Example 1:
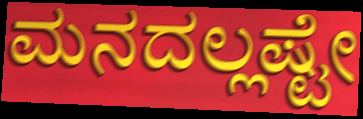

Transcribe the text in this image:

ಮನದಲ್ಲಷ್ಟೇ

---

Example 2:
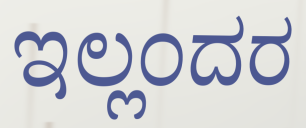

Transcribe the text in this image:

ಇಲ್ಲಂದರ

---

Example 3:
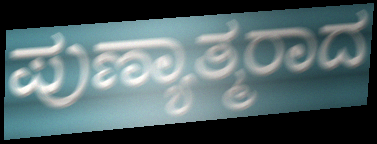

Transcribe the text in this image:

ಪುಣ್ಯಾತ್ಮರಾದ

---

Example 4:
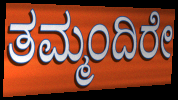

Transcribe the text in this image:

ತಮ್ಮಂದಿರೇ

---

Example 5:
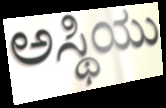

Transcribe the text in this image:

ಅಸ್ಥಿಯು